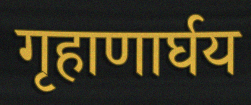
गृहाणार्घय